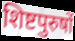
शिष्टपुरुषों